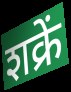
शक्रें